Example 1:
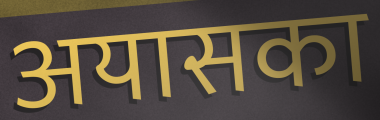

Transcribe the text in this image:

अयासका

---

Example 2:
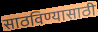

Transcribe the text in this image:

साठविण्यासाठी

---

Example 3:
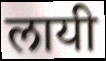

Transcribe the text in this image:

लायी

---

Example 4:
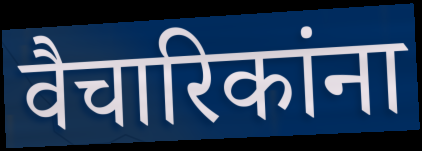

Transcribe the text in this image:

वैचारिकांना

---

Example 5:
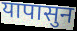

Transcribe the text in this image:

यापासुन